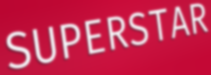
SUPERSTAR